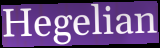
Hegelian